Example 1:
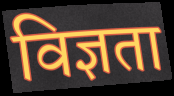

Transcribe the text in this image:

विज्ञता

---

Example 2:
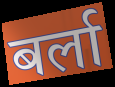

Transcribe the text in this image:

बर्ला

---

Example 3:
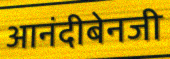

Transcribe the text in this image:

आनंदीबेनजी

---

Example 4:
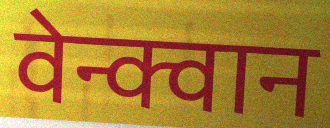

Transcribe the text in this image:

वेन्क्वान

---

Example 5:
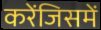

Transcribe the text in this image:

करेंजिसमें